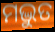
ମଦ୍ଭୁତ